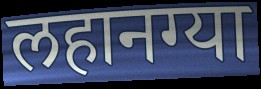
लहानग्या